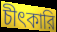
চীৎকারি